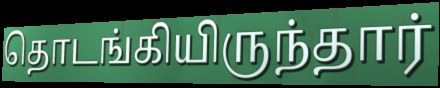
தொடங்கியிருந்தார்